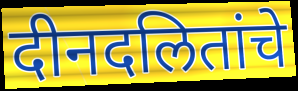
दीनदलितांचे